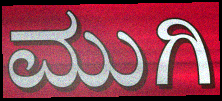
ಮುಗಿ